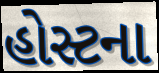
હોસ્ટના